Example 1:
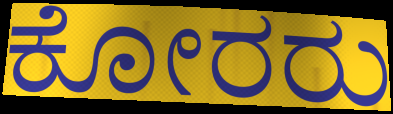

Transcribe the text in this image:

ಕೋರರು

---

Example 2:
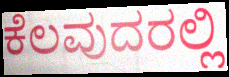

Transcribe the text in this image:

ಕೆಲವುದರಲ್ಲಿ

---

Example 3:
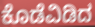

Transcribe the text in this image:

ಕೊಡೆವಿಡಿದ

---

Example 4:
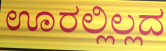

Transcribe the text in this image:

ಊರಲ್ಲಿಲ್ಲದ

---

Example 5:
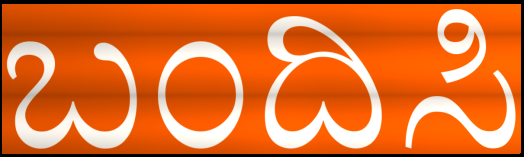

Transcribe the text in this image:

ಬಂದಿಸಿ